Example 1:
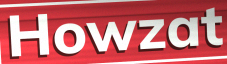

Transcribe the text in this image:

Howzat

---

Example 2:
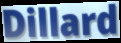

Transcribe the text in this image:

Dillard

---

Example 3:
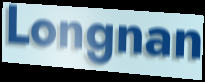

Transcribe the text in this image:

Longnan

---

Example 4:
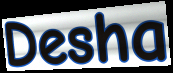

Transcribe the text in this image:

Desha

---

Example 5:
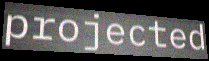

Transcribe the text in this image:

projected